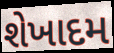
શેખાદમ